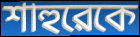
শাহুৱেকে